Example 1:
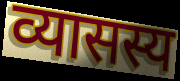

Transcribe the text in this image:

व्यासस्य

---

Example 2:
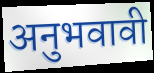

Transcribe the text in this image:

अनुभवावी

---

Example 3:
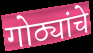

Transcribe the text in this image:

गोठ्यांचे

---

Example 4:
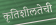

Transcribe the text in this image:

कृतिशीलतेची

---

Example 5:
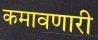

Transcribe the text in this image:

कमावणारी